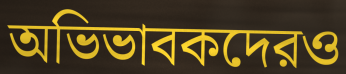
অভিভাবকদেরও